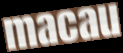
macau